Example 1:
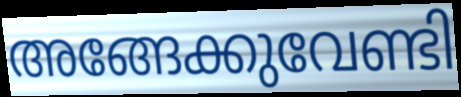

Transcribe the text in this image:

അങ്ങേക്കുവേണ്ടി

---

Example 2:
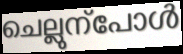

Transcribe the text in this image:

ചെല്ലുന്പോൾ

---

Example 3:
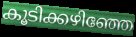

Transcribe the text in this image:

കൂടിക്കഴിഞ്ഞേ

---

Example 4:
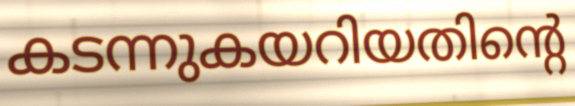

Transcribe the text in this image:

കടന്നുകയറിയതിന്റെ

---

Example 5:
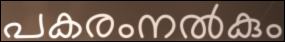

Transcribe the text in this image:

പകരംനൽകും